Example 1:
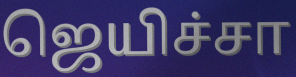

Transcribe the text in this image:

ஜெயிச்சா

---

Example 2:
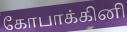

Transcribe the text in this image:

கோபாக்கினி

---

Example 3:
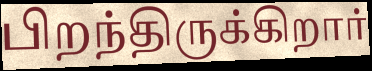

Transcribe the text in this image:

பிறந்திருக்கிறார்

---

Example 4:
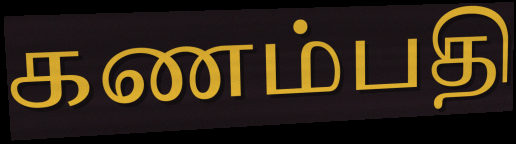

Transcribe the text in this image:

கணம்பதி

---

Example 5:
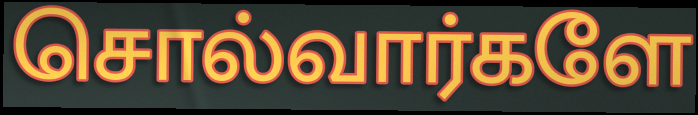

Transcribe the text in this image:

சொல்வார்களே